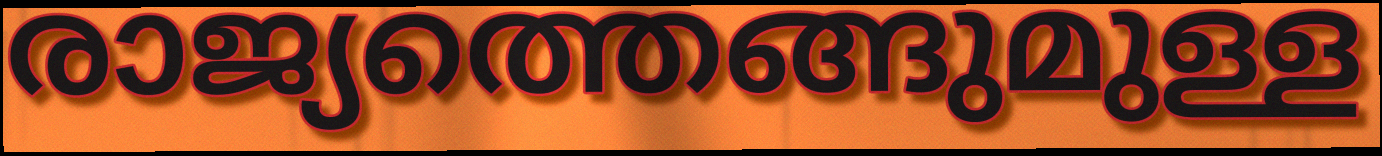
രാജ്യത്തെങ്ങുമുള്ള